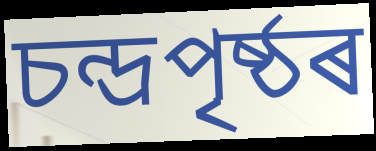
চন্দ্ৰপৃষ্ঠৰ